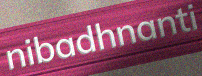
nibadhnanti